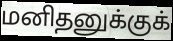
மனிதனுக்குக்